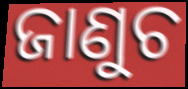
ଜାଣୁଚ